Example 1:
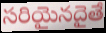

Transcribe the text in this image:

సరియైనదైతే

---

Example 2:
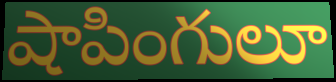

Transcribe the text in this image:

షాపింగులూ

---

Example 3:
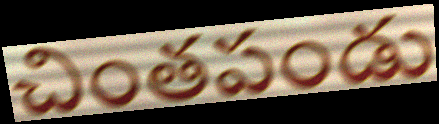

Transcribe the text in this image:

చింతపండు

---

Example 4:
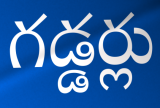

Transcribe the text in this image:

గడ్డర్లు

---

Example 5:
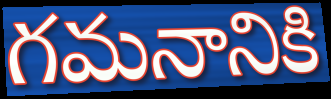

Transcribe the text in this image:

గమనానికి